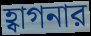
হ্বাগনার